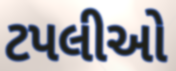
ટપલીઓ